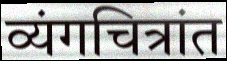
व्यंगचित्रांत